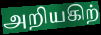
அறியகிற்